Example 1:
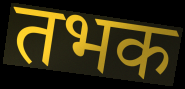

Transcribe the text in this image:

तभक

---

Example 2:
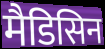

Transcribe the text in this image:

मैडिसिन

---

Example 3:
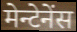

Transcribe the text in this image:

मेन्टेनेंस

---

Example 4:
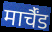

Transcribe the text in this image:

मार्चैंड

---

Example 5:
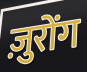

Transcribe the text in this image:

ज़ुरोंग